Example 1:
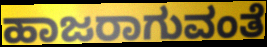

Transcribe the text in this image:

ಹಾಜರಾಗುವಂತೆ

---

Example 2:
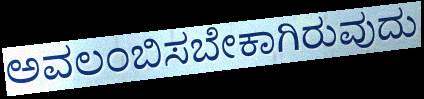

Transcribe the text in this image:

ಅವಲಂಬಿಸಬೇಕಾಗಿರುವುದು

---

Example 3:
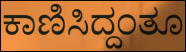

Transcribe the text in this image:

ಕಾಣಿಸಿದ್ದಂತೂ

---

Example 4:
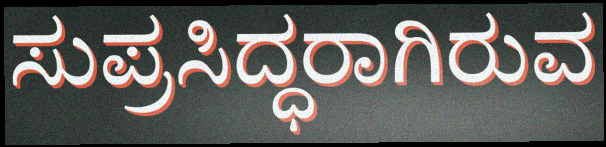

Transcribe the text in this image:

ಸುಪ್ರಸಿದ್ಧರಾಗಿರುವ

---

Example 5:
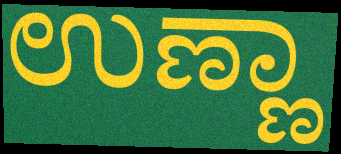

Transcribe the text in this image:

ಉಣ್ಣಾ